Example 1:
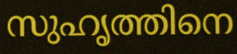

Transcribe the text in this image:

സുഹൃത്തിനെ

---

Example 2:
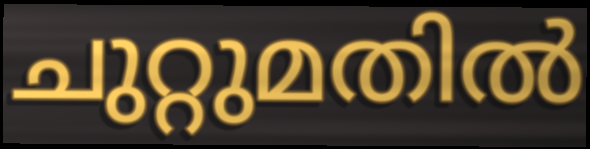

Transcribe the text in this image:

ചുറ്റുമതിൽ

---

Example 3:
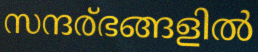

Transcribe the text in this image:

സന്ദര്ഭങ്ങളിൽ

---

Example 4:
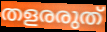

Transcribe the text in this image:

തളരരുത്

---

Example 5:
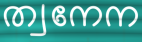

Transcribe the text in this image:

ത്വനേന